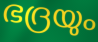
ഭദ്രയും